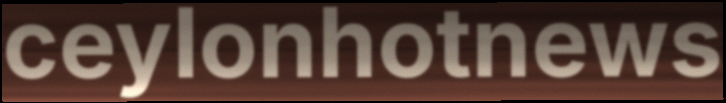
ceylonhotnews